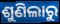
ଶୁଣିଲାରୁ